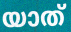
യാത്